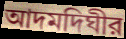
আদমদিঘীর